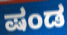
ಷಂಡ